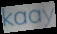
kaay